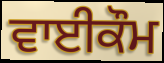
ਵਾਈਕੌਮ